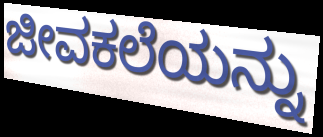
ಜೀವಕಲೆಯನ್ನು